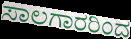
ಸಾಲಗಾರರಿಂದ